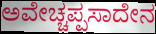
ಅವೇಚ್ಚಪ್ಪಸಾದೇನ